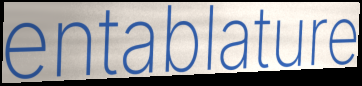
entablature